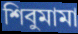
শিবুমামা